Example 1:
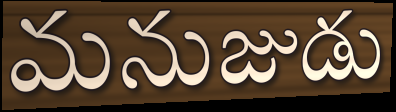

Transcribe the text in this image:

మనుజుడు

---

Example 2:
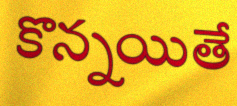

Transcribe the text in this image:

కొన్నయితే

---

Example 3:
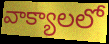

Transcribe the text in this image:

వాక్యాలలో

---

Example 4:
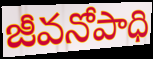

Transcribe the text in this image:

జీవనోపాధి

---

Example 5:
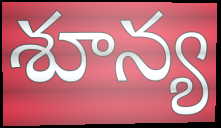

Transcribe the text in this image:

శూన్య